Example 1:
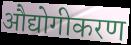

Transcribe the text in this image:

औद्योगीकरण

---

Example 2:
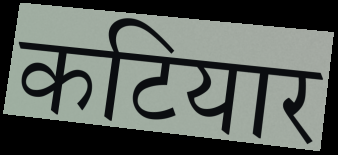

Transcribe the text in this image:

कटियार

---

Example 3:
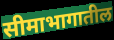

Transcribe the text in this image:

सीमाभागातील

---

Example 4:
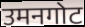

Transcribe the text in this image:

उमनगोट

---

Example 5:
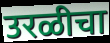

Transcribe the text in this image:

उरळीचा